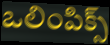
ఒలింపిక్స్